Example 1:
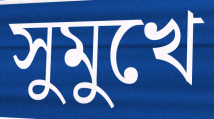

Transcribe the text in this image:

সুমুখে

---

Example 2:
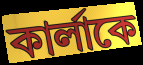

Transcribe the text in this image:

কার্লাকে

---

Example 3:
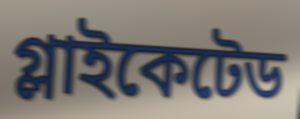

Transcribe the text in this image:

গ্লাইকেটেড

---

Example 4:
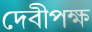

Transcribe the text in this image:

দেবীপক্ষ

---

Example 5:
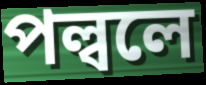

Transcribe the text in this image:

পল্বলে